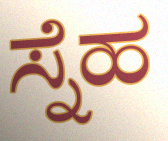
ಸ್ನೆಹ